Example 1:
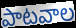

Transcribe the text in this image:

పాటవాల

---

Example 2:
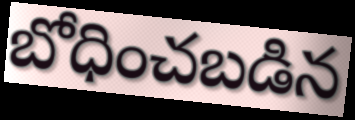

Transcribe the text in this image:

బోధించబడిన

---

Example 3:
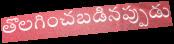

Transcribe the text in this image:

తొలగించబడినప్పుడు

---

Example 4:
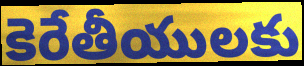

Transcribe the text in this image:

కెరేతీయులకు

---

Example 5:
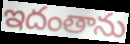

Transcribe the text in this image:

ఇదంతాను